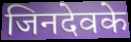
जिनदेवके